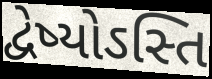
દ્વેષ્યોઽસ્તિ